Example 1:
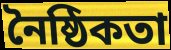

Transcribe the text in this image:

নৈষ্ঠিকতা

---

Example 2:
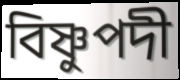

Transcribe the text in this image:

বিষ্ণুপদী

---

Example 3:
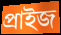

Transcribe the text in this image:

প্ৰাইজ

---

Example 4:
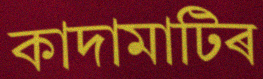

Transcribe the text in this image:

কাদামাটিৰ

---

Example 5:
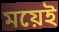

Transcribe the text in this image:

ময়েই